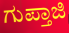
ಗುಪ್ತಾಜಿ